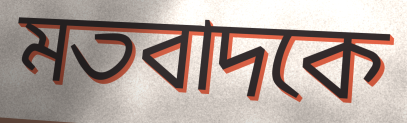
মতবাদকে